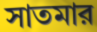
সাতমার